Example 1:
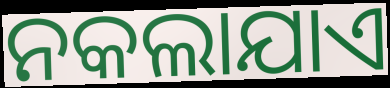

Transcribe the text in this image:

ନକଲାଯାଏ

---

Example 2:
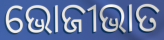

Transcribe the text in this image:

ଭୋଜୀଭାତ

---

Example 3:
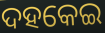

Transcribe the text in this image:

ଦହକେଇ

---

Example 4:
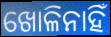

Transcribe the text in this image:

ଖୋଳିନାହିଁ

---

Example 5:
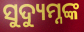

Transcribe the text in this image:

ସୁଦ୍ୟୁମ୍ନଙ୍କ